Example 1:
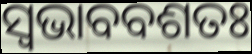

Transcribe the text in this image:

ସ୍ୱଭାବବଶତଃ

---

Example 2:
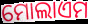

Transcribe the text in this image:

ମୋଲାଏମ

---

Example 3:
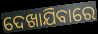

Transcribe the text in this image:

ଦେଖାଯିବାରେ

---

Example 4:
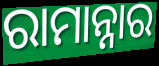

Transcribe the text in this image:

ରାମାନ୍ନାର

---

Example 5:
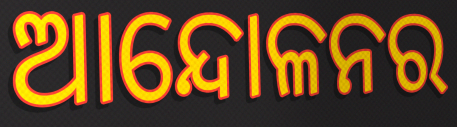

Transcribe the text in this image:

ଆନ୍ଦୋଳନର